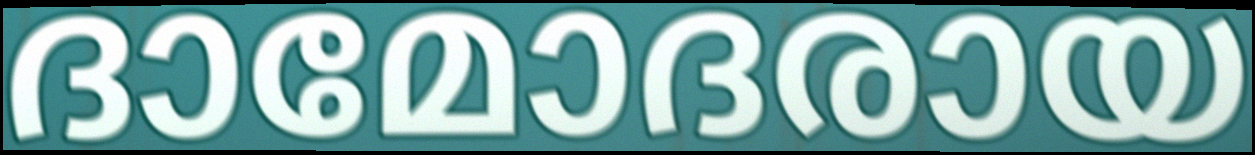
ദാമോദരായ